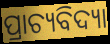
ପ୍ରାଚ୍ୟବିଦ୍ୟା